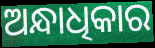
ଅନ୍ଧାଧିକାର